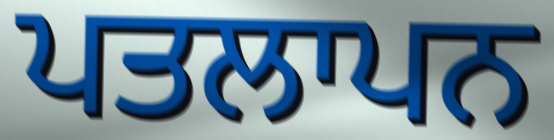
ਪਤਲਾਪਨ